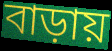
বাড়ায়